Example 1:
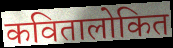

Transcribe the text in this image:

कवितालोकित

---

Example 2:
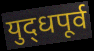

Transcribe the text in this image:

युद्धपूर्व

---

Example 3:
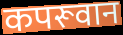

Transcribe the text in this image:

कपरूवान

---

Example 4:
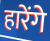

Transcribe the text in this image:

हारेंगे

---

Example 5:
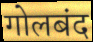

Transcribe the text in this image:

गोलबंद